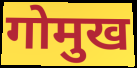
गोमुख